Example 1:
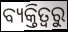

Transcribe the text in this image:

ବ୍ୟକ୍ତିତ୍ୱରୁ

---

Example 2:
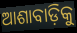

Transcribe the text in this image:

ଆଶାବାଡ଼ିକୁ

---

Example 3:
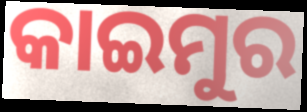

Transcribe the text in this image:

କାଇମୁର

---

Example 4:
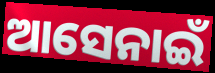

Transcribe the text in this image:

ଆସେନାଇଁ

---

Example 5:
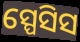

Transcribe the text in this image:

ସ୍ପେସିସ